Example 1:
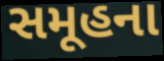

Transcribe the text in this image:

સમૂહના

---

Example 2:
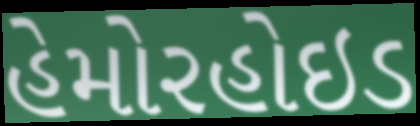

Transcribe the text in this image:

હેમોરહોઇડ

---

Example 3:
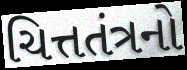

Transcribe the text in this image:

ચિત્તતંત્રનો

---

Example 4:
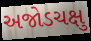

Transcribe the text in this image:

અજોડચક્ષુ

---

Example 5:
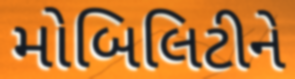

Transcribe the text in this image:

મોબિલિટીને